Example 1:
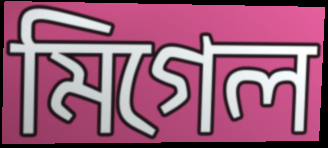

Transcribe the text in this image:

মিগেল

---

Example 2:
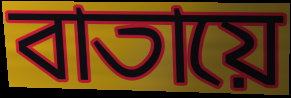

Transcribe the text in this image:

বাতায়ে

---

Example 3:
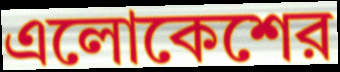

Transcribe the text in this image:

এলোকেশের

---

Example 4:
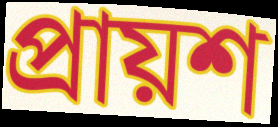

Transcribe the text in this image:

প্রায়শ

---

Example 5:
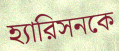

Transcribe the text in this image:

হ্যারিসনকে